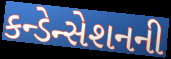
કન્ડેન્સેશનની